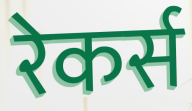
रेकर्स